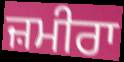
ਜ਼ਮੀਰਾ